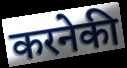
करनेकी